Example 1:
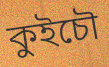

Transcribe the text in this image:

কুইচৌ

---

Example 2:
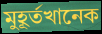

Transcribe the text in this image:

মুহূর্তখানেক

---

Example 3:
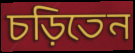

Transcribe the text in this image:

চড়িতেন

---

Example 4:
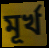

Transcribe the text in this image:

মূর্খ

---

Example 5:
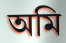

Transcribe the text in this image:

অমি